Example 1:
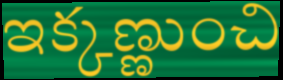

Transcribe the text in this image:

ఇక్కణ్ణుంచి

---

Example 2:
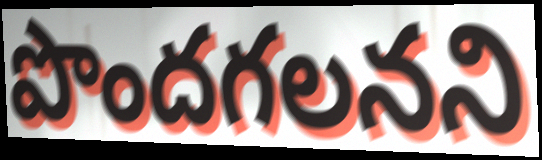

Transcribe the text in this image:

పొందగలనని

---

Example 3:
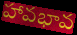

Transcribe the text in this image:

హావభావ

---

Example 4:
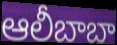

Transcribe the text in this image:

ఆలీబాబా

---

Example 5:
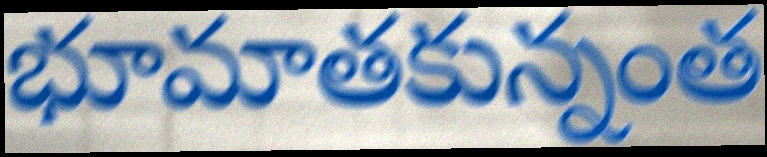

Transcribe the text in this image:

భూమాతకున్నంత